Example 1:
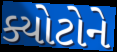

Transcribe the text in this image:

ક્યોટોને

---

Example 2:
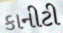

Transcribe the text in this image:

કાનીટી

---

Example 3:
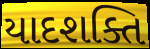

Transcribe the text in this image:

યાદશક્તિ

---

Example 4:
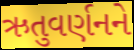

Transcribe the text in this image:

ઋતુવર્ણનને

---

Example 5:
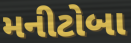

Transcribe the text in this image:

મનીટોબા